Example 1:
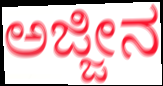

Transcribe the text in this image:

ಅಜ್ಜೀನ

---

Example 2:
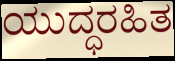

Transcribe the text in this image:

ಯುದ್ಧರಹಿತ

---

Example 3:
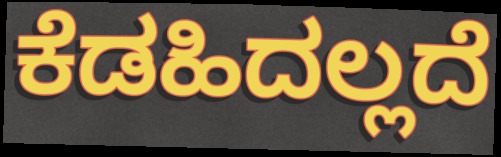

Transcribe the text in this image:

ಕೆಡಹಿದಲ್ಲದೆ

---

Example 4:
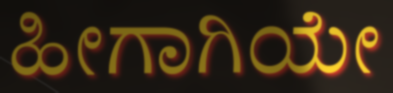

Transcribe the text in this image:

ಹೀಗಾಗಿಯೇ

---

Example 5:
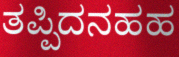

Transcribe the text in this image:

ತಪ್ಪಿದನಹಹ